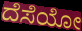
ದೆಸೆಯೋ